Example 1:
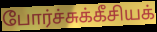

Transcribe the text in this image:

போர்ச்சுக்கீசியக்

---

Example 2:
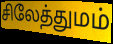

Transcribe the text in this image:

சிலேத்துமம்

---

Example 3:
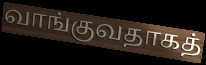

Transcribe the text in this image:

வாங்குவதாகத்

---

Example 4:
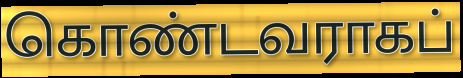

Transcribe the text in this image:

கொண்டவராகப்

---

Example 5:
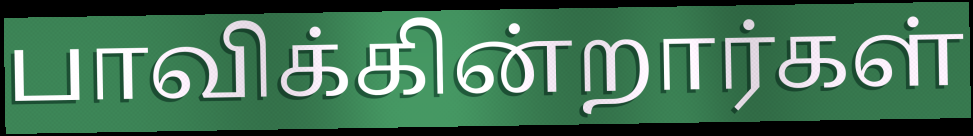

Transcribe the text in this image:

பாவிக்கின்றார்கள்